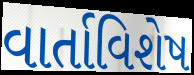
વાર્તાવિશેષ